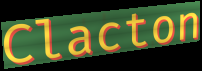
Clacton